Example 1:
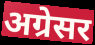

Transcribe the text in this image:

अग्रेसर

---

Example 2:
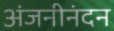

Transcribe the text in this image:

अंजनीनंदन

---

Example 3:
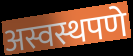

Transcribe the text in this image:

अस्वस्थपणे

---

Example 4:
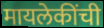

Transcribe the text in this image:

मायलेकींची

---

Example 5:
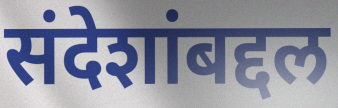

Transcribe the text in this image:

संदेशांबद्दल